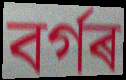
বৰ্গৰ